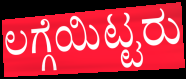
ಲಗ್ಗೆಯಿಟ್ಟರು